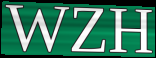
WZH